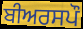
ਬੀਅਰਸਪੌ